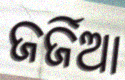
ଜର୍ଜିଆ